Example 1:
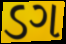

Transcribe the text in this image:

ડગ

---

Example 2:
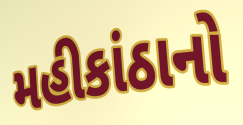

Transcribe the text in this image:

મહીકાંઠાનો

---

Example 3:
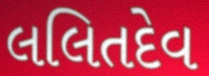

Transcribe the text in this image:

લલિતદેવ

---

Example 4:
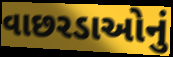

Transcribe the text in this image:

વાછરડાઓનું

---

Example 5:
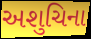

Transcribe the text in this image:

અશુચિના